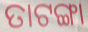
ତାଟଙ୍ଗା